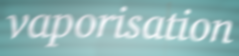
vaporisation